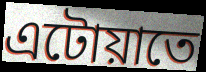
এটোয়াতে